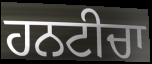
ਹਨਟੀਚਾ